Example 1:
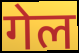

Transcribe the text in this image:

गेल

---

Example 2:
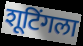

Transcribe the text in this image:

शूटिंगला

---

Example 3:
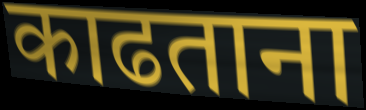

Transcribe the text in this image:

काढताना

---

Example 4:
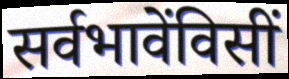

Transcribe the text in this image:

सर्वभावेंविसीं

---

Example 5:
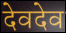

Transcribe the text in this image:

देवदेव